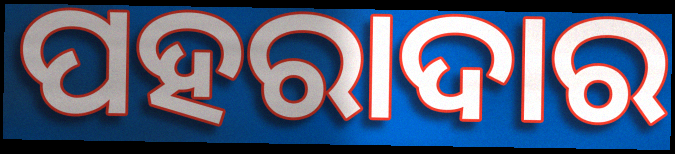
ପହରାଦାର